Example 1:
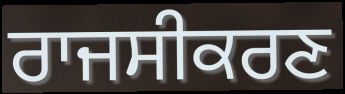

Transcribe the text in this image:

ਰਾਜਸੀਕਰਣ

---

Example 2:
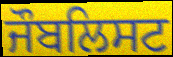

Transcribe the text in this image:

ਜੌਬਲਿਸਟ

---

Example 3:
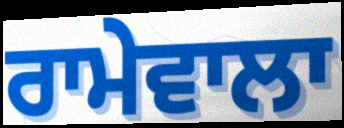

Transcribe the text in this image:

ਰਾਮੇਵਾਲਾ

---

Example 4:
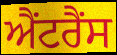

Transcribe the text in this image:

ਐਂਟਰੈਂਸ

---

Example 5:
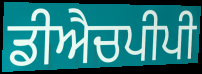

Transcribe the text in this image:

ਡੀਐਚਪੀਪੀ